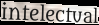
intelectual